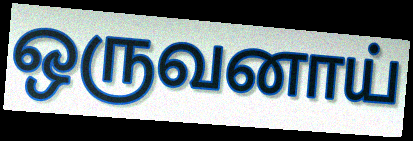
ஒருவனாய்